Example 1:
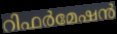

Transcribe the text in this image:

റിഫർമേഷൻ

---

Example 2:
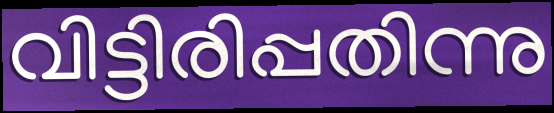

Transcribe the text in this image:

വിട്ടിരിപ്പതിന്നു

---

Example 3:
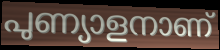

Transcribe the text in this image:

പുണ്യാളനാണ്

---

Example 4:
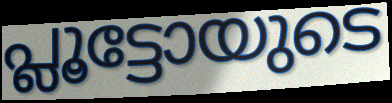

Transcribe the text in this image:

പ്ലൂട്ടോയുടെ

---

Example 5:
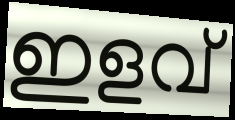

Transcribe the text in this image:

ഇളവ്